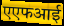
एएफआई